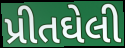
પ્રીતઘેલી